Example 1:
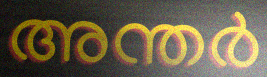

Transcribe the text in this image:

അന്തർ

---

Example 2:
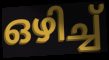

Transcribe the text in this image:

ഒഴിച്ച്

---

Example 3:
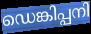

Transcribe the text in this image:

ഡെങ്കിപ്പനി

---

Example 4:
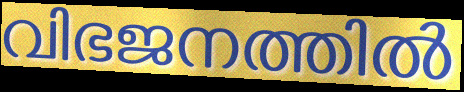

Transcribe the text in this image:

വിഭജനത്തിൽ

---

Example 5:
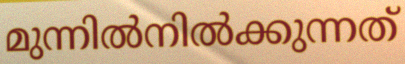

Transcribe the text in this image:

മുന്നിൽനിൽക്കുന്നത്